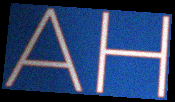
AH